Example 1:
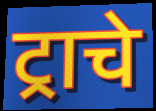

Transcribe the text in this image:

ट्राचे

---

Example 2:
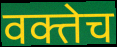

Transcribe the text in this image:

वक्तेच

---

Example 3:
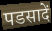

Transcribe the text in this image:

पडसादें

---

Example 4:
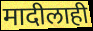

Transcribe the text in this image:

मादीलाही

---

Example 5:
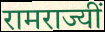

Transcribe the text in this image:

रामराज्यीं